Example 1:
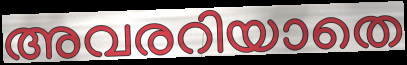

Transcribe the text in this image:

അവരറിയാതെ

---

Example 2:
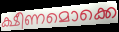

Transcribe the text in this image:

ക്ഷീണമൊക്കെ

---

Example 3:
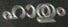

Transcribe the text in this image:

ഹാതും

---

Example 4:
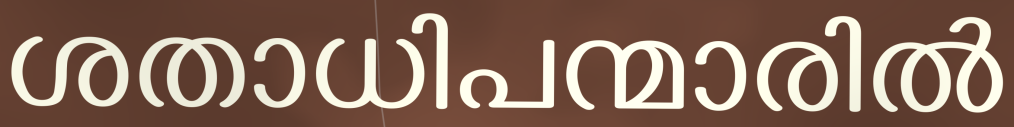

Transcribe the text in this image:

ശതാധിപന്മാരിൽ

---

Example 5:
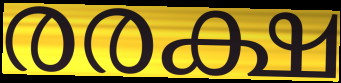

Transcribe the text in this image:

രരക്ഷ